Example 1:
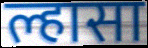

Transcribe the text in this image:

ल्हासा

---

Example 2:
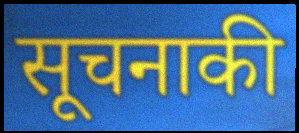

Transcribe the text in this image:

सूचनाकी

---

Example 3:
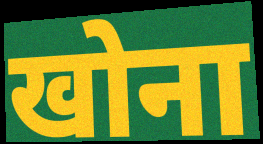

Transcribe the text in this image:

खोना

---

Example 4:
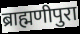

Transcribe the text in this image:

ब्राह्मणीपुरा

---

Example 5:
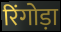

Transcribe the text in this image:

रिंगोड़ा